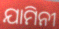
ଯାମିନୀ